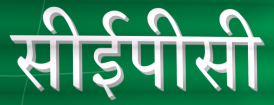
सीईपीसी